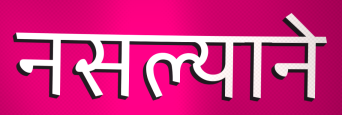
नसल्याने